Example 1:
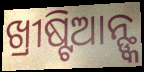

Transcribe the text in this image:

ଖ୍ରୀଷ୍ଟିଆନ୍ଙ୍କ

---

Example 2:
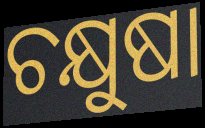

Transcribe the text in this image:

ଚକ୍ଷୁଷା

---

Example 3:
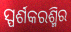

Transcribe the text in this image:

ସ୍ପର୍ଶକରଶ୍ମିର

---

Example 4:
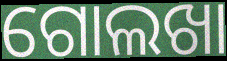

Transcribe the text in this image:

ଗୋଲଖା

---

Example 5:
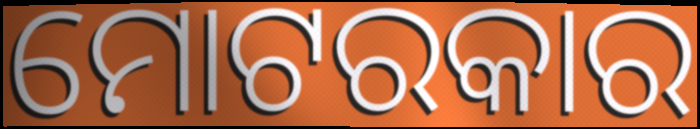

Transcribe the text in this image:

ମୋଟରକାର